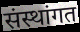
संस्थांगत